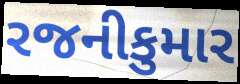
રજનીકુમાર